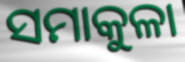
ସମାକୁଳା